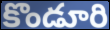
కొండూరి